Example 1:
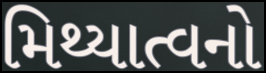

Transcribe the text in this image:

મિથ્યાત્વનો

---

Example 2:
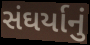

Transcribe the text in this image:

સંઘર્યાનું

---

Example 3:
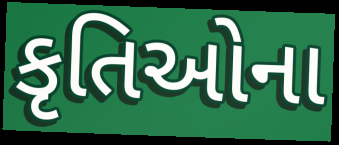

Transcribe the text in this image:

કૃતિઓના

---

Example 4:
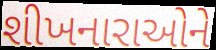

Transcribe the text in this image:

શીખનારાઓને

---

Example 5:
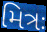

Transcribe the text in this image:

મિત્રઃ